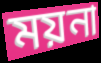
ময়না